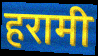
हरामी